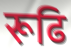
रूढि